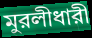
মুরলীধারী